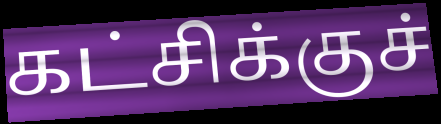
கட்சிக்குச்